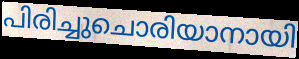
പിരിച്ചുചൊരിയാനായി